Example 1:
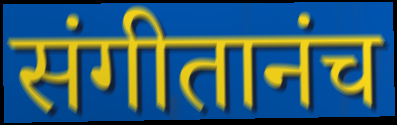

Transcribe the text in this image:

संगीतानंच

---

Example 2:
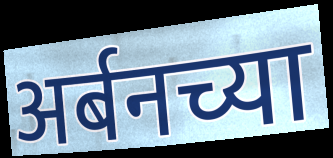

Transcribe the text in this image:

अर्बनच्या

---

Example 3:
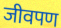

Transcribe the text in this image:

जीवपण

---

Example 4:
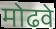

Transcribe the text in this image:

मोढवे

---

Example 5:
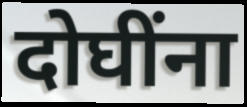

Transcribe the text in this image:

दोघींना